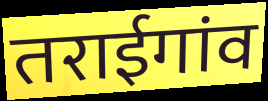
तराईगांव